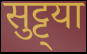
सुट्ट्या